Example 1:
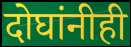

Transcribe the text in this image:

दोघांनीही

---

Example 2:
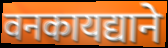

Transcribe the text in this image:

वनकायद्याने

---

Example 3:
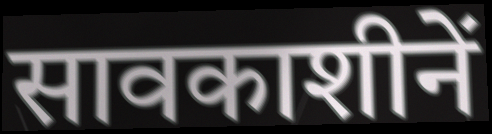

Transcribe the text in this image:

सावकाशीनें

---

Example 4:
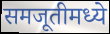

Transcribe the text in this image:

समजूतीमध्ये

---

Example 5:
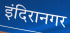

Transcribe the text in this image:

इंदिरानगर